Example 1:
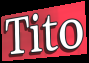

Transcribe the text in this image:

Tito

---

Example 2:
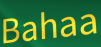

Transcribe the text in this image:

Bahaa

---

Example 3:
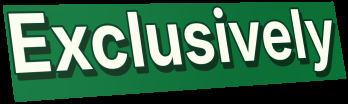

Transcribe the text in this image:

Exclusively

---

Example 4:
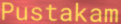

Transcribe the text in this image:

Pustakam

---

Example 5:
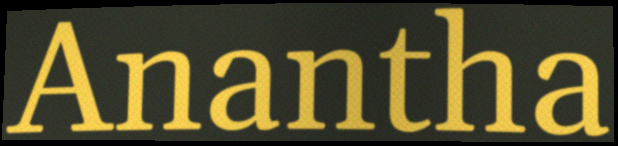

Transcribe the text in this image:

Anantha